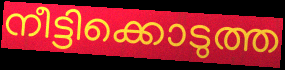
നീട്ടിക്കൊടുത്ത